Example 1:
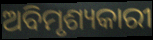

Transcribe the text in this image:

ଅବିମୃଶ୍ୟକାରୀ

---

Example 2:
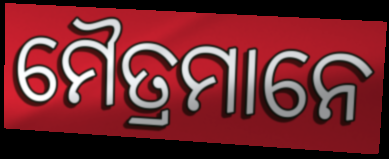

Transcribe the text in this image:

ମୈତ୍ରମାନେ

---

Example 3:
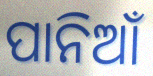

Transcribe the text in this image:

ପାନିଆଁ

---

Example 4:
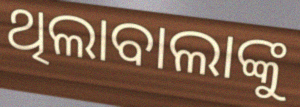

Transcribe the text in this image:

ଥିଲାବାଲାଙ୍କୁ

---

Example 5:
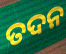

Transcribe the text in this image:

ତଦନ